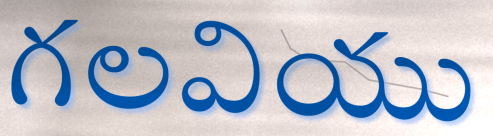
గలవియు